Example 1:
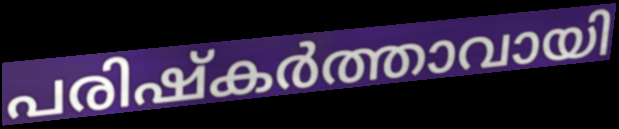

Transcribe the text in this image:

പരിഷ്കർത്താവായി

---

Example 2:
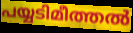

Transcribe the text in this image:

പയ്യടിമീത്തൽ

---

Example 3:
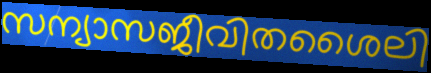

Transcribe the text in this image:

സന്യാസജീവിതശൈലി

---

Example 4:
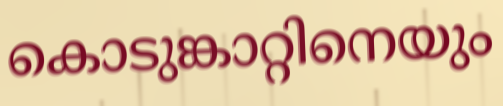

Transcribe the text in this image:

കൊടുങ്കാറ്റിനെയും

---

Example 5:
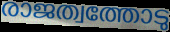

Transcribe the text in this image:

രാജത്വത്തോടു